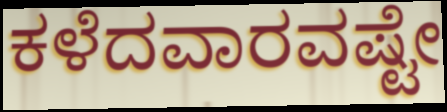
ಕಳೆದವಾರವಷ್ಟೇ